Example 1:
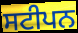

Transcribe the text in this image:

ਸਟੀਪਨ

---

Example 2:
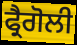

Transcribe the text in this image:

ਫ੍ਰੈਗੋਲੀ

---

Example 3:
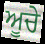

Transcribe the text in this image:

ਅੂਚੇ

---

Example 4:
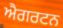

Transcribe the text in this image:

ਐਗਰਟਨ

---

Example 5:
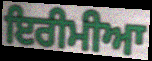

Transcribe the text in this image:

ਇਰੀਮੀਆ